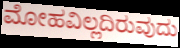
ಮೋಹವಿಲ್ಲದಿರುವುದು